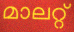
മാലറ്റ്